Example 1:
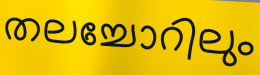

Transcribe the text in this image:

തലച്ചോറിലും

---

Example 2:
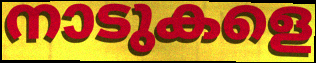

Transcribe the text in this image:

നാടുകളെ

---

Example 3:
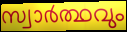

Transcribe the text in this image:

സ്വാർത്ഥവും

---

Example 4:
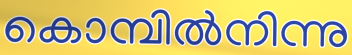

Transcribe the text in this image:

കൊമ്പിൽനിന്നു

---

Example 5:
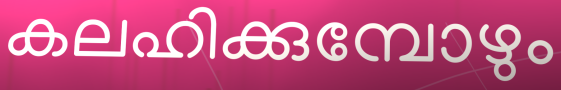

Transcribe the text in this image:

കലഹിക്കുമ്പോഴും